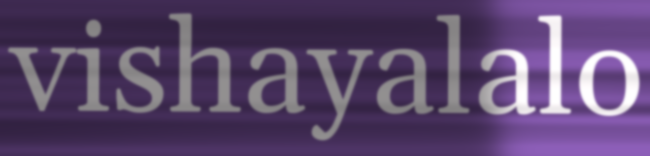
vishayalalo